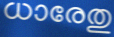
ധാരേതു